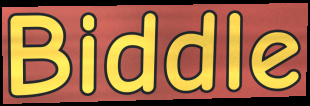
Biddle